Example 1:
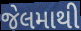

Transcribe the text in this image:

જેલમાથી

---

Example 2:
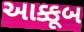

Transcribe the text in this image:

આક્કૂબ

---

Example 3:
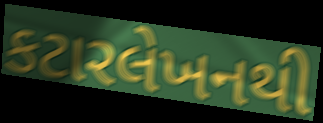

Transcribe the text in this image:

કટારલેખનથી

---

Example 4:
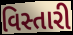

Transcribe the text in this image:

વિસ્તારી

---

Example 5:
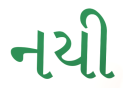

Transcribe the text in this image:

નયી